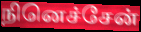
நினெச்சேன்